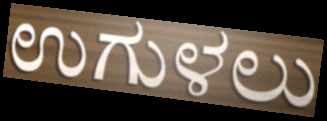
ಉಗುಳಲು